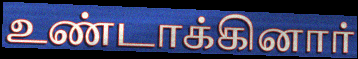
உண்டாக்கினார்